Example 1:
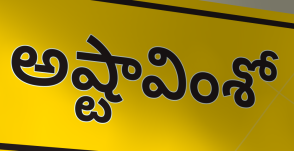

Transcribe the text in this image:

అష్టావింశో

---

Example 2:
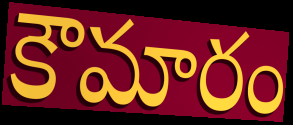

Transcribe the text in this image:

కౌమారం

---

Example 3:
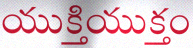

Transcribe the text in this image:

యుక్తియుక్తం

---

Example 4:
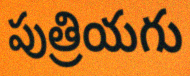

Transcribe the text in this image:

పుత్రియగు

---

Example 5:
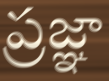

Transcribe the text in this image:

ప్రజ్ఞా